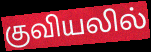
குவியலில்